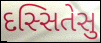
દસ્સિતેસુ